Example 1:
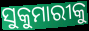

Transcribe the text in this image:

ସୁକୁମାରୀକୁ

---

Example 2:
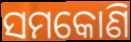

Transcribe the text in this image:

ସମକୋଣି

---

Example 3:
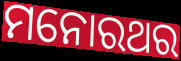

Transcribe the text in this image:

ମନୋରଥର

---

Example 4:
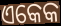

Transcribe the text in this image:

ଏକେକ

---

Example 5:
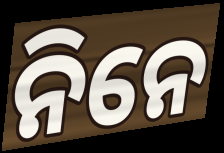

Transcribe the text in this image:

ନିନେ